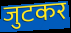
जुटकर